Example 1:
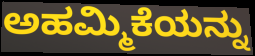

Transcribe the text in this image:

ಅಹಮ್ಮಿಕೆಯನ್ನು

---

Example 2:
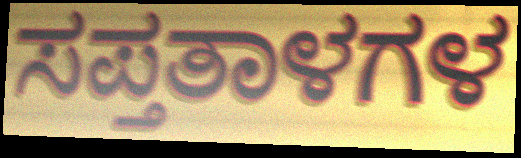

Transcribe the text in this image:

ಸಪ್ತತಾಳಗಳ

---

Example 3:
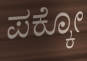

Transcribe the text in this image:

ಪಕ್ಕೋ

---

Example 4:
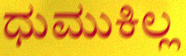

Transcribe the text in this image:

ಧುಮುಕಿಲ್ಲ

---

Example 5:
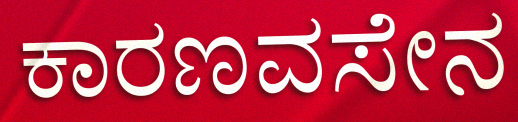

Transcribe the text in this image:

ಕಾರಣವಸೇನ